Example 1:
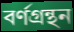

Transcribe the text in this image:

বর্ণগ্রন্থন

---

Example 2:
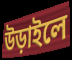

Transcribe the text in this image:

উড়াইলে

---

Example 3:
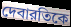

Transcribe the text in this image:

দেবারতিকে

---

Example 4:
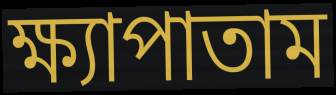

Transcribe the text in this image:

ক্ষ্যাপাতাম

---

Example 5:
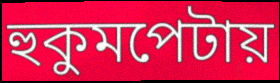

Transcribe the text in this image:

হুকুমপেটায়